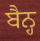
ਬੈਨ੍ਹ